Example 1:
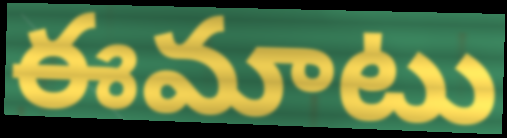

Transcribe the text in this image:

ఈమాటు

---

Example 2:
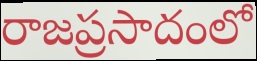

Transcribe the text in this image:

రాజప్రసాదంలో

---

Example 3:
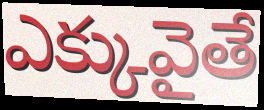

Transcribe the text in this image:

ఎక్కువైతే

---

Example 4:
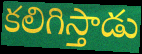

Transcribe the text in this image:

కలిగిస్తాడు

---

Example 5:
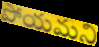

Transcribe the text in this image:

పోయమని